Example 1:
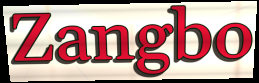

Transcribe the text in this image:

Zangbo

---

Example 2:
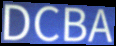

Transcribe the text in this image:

DCBA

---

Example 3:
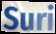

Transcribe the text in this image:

Suri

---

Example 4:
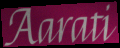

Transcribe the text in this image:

Aarati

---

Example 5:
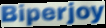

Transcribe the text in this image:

Biperjoy